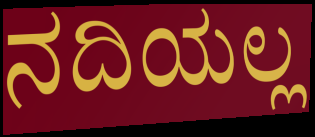
ನದಿಯಲ್ಲ